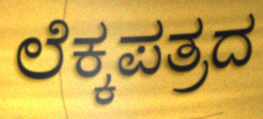
ಲೆಕ್ಕಪತ್ರದ